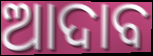
ଆଦାବ